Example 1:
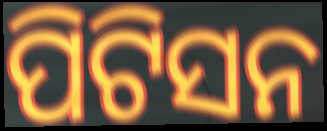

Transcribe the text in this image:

ପିଟିସନ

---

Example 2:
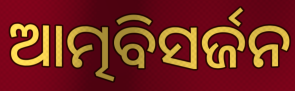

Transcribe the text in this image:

ଆତ୍ମବିସର୍ଜନ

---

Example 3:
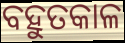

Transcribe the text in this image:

ବହୁତକାଳ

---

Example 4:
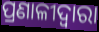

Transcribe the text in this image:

ପ୍ରଣାଳୀଦ୍ୱାରା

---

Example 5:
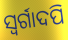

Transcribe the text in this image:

ସ୍ୱର୍ଗାଦପି